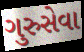
ગુરુસેવા